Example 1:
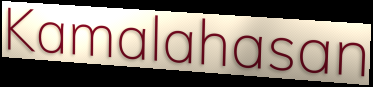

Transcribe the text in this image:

Kamalahasan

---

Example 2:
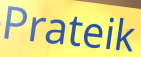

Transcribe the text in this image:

Prateik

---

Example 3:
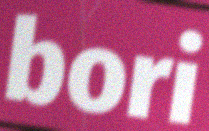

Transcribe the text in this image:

bori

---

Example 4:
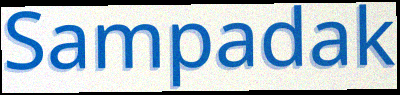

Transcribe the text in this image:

Sampadak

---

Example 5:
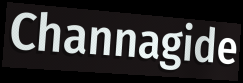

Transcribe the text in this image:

Channagide